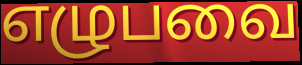
எழுபவை